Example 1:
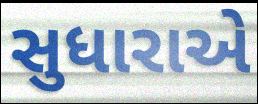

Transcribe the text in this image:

સુધારાએ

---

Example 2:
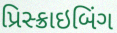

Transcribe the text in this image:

પ્રિસ્ક્રાઇબિંગ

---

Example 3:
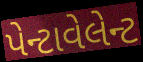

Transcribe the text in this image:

પેન્ટાવેલેન્ટ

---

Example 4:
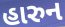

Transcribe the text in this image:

હારુન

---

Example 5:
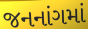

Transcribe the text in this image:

જનનાંગમાં